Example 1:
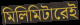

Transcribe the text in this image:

মিলিমিটারেই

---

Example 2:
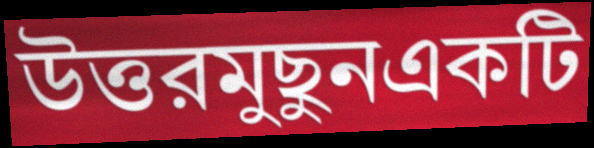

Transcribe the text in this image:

উত্তরমুছুনএকটি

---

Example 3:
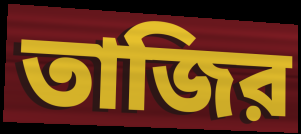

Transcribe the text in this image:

তাজির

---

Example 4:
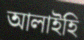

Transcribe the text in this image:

আলাইহি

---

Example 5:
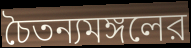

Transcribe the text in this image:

চৈতন্যমঙ্গলের